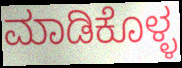
ಮಾಡಿಕೊಳ್ಳ